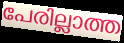
പേരില്ലാത്ത